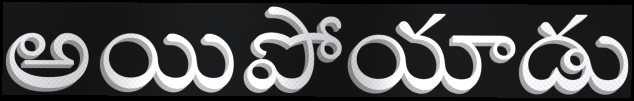
అయిపోయాడు